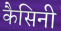
कैसिनी